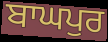
ਬਾਘਪੁਰ